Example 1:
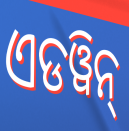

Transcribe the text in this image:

ଏଡୱିନ୍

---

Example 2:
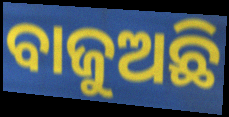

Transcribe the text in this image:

ବାଜୁଅଛି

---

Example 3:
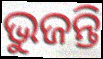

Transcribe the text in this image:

ଭୁଜନ୍ତି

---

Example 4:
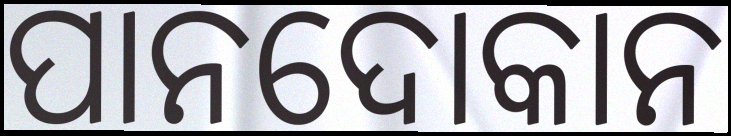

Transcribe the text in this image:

ପାନଦୋକାନ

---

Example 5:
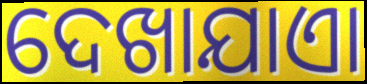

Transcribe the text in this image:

ଦେଖାଯାଏା